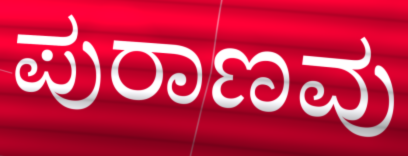
ಪುರಾಣವು